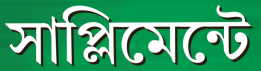
সাপ্লিমেন্টে